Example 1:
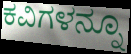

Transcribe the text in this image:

ಕವಿಗಳನ್ನೂ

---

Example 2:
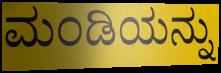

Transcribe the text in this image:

ಮಂಡಿಯನ್ನು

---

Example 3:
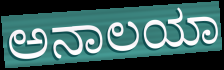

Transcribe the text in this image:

ಅನಾಲಯಾ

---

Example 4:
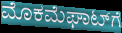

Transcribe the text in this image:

ಮೊಕಮೆಘಾಟ್‌ಗೆ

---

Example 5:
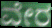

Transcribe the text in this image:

ವೇರ